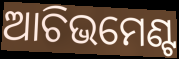
ଆଚିଭମେଣ୍ଟ